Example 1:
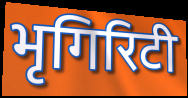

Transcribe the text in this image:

भृगिरिटी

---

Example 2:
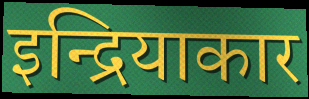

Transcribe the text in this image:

इन्द्रियाकार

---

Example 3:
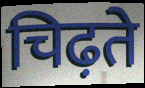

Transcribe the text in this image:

चिढ़ते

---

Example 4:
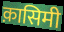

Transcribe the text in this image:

क़ासिमी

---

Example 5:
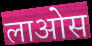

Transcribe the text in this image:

लाओस